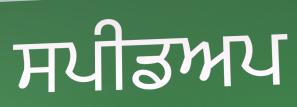
ਸਪੀਡਅਪ